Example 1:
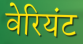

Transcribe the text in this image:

वेरियंट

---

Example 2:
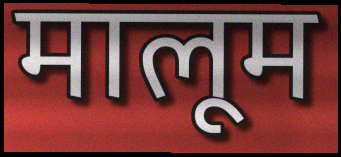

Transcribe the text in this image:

मालूम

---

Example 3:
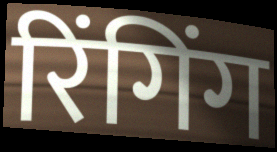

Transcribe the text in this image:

रिंगिंग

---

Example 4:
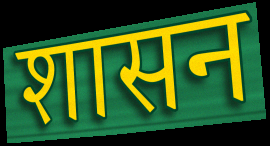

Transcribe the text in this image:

शासन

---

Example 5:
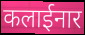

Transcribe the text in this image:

कलाईनार